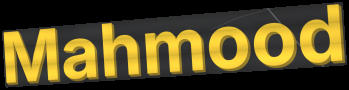
Mahmood